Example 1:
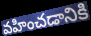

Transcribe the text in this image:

వహించడానికి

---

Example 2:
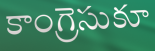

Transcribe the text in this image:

కాంగ్రెసుకూ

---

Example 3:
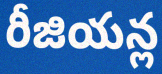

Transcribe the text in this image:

రీజియన్ల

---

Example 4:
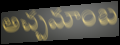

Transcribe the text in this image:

అచ్చమాంబ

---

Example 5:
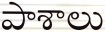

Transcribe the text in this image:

పాశాలు